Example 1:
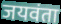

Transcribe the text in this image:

जयवंता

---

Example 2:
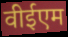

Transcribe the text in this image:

वीईएम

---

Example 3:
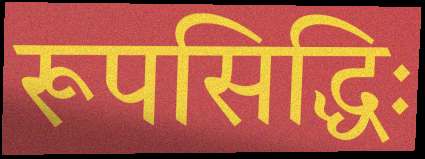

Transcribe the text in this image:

रूपसिद्धिः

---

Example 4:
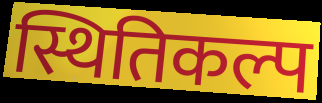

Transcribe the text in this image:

स्थितिकल्प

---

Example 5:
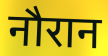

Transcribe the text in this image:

नौरान